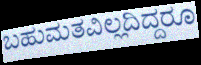
ಬಹುಮತವಿಲ್ಲದಿದ್ದರೂ